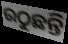
ଉଠୁଛନ୍ତି